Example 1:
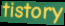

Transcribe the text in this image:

tistory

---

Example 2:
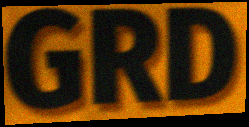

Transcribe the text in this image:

GRD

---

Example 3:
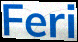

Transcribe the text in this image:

Feri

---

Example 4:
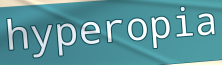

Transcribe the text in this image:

hyperopia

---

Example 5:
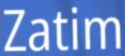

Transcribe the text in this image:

Zatim